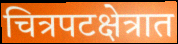
चित्रपटक्षेत्रात